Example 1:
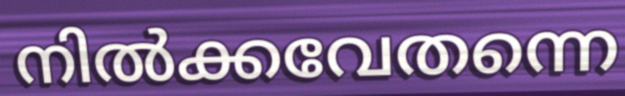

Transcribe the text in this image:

നിൽക്കവേതന്നെ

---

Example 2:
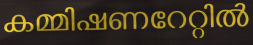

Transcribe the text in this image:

കമ്മിഷണറേറ്റിൽ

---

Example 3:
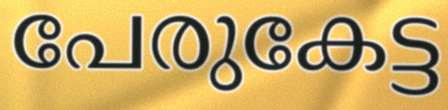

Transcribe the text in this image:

പേരുകേട്ട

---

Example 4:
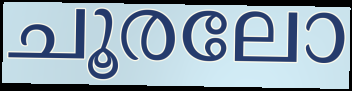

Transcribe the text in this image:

ചൂരലോ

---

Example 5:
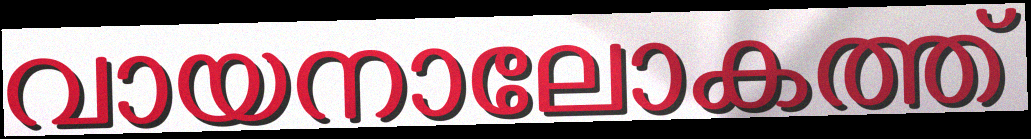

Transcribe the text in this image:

വായനാലോകത്ത്